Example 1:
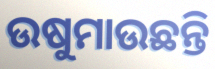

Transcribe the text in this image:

ଉଷୁମାଉଛନ୍ତି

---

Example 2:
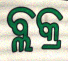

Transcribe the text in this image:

ବ୍ଲକ୍ର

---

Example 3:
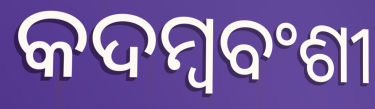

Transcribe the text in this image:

କଦମ୍ବବଂଶୀ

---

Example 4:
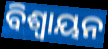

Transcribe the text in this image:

ବିଶ୍ୱାୟନ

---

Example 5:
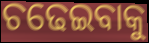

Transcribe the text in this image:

ଚଢେଇବାକୁ